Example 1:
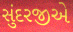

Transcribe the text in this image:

સુંદરજીએ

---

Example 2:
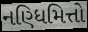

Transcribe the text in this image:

નણ્ધિમિત્તો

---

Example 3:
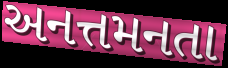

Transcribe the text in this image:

અનત્તમનતા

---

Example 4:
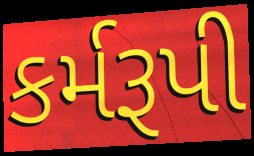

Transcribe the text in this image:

કર્મરૂપી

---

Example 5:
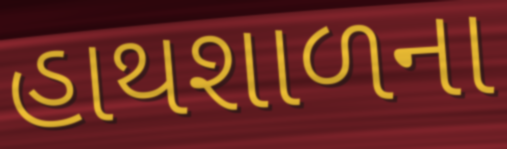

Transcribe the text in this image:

હાથશાળના